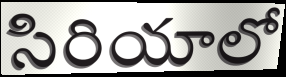
సిరియాలో